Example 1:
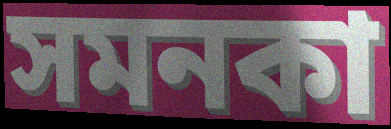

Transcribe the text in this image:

সমনকা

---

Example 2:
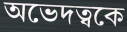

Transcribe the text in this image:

অভেদত্বকে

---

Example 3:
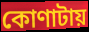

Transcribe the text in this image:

কোণাটায়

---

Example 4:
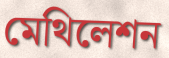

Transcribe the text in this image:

মেথিলেশন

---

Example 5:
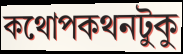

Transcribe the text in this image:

কথোপকথনটুকু